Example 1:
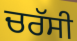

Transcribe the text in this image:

ਚਰੱਸੀ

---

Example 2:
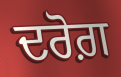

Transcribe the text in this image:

ਦਰੋਗ਼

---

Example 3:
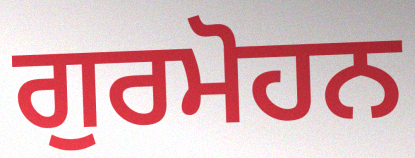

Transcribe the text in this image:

ਗੁਰਮੋਹਨ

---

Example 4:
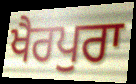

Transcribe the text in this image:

ਖੈਰਪੁਰਾ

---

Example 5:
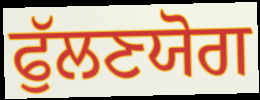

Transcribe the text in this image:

ਫੁੱਲਣਯੋਗ